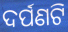
ଦର୍ପଣଟି